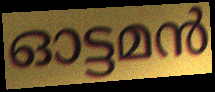
ഓട്ടമൻ